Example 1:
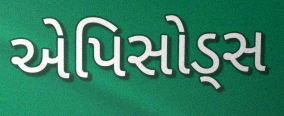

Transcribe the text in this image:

એપિસોડ્સ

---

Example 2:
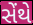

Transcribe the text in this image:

સેંથે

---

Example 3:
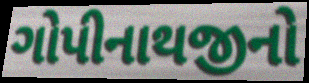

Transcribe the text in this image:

ગોપીનાથજીનો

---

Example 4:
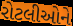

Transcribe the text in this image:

રોટલીઓને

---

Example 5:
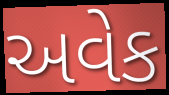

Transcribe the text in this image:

અવેક